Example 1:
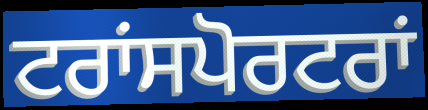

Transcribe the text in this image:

ਟਰਾਂਸਪੋਰਟਰਾਂ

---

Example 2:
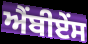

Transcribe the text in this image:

ਐਂਬੀਏਂਸ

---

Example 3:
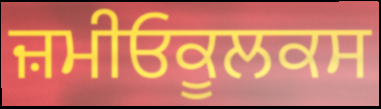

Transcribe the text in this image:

ਜ਼ਮੀਓਕੂਲਕਸ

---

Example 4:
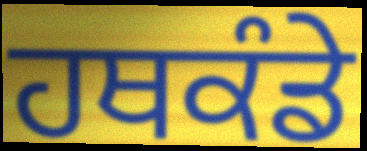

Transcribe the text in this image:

ਹਥਕੰਡੇ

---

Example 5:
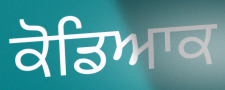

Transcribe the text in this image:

ਕੋਡਿਆਕ